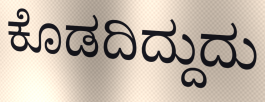
ಕೊಡದಿದ್ದುದು